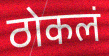
ठोकलं